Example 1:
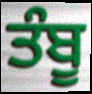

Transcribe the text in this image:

ਤੰਬੂ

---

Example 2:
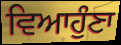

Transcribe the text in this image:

ਵਿਆਹੁੰਣਾ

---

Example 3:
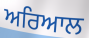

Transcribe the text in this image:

ਅਰਿਆਲ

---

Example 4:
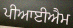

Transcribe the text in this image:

ਪੀਆਈਐਮ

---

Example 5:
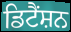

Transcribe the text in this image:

ਡਿਟੈਂਸ਼ਨ